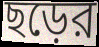
ছড়ের